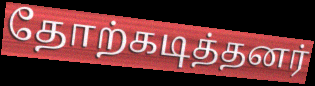
தோற்கடித்தனர்